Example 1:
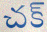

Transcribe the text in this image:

చక్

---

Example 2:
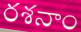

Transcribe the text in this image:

రశనాం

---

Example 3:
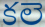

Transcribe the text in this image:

కలె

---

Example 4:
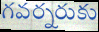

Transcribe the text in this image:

గవర్నరుకు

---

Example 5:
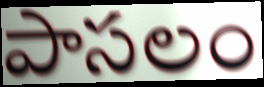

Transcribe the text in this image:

పాసలం